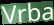
Vrba